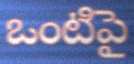
ఒంటిపై